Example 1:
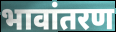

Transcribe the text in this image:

भावांतरण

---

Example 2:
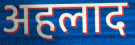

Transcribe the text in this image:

अहलाद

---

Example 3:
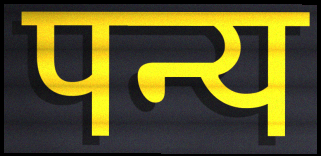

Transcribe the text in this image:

पन्य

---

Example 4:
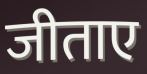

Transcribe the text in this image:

जीताए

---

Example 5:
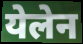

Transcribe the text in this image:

येलेन